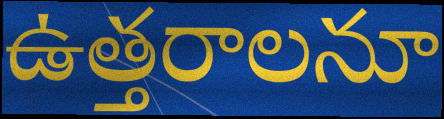
ఉత్తరాలనూ